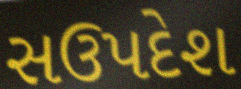
સઉપદેશ